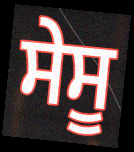
ਸੇਸੂ